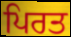
ਪਿਰਤ